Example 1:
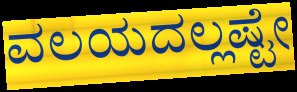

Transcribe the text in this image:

ವಲಯದಲ್ಲಷ್ಟೇ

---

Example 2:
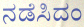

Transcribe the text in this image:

ನಡೆಸಿದಂ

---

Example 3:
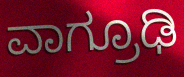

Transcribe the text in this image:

ವಾಗ್ರೂಢಿ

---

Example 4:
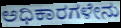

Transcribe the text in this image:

ಅಧಿಕಾರಗಳೇನು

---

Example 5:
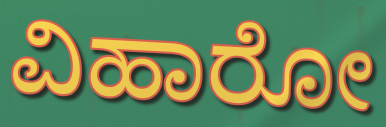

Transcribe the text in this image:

ವಿಹಾರೋ